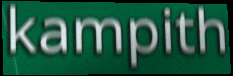
kampith